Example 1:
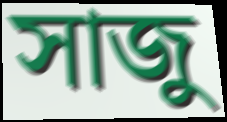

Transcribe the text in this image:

সাজু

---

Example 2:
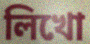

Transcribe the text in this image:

লিখো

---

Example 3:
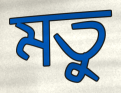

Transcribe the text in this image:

মতু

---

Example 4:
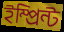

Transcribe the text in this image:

ইম্প্ৰিন্ট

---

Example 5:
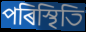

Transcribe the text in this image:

পৰিস্থিতি